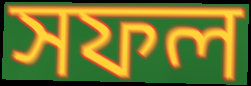
সফল